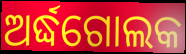
ଅର୍ଦ୍ଧଗୋଲକ